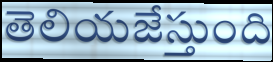
తెలియజేస్తుంది